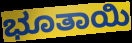
ಭೂತಾಯಿ